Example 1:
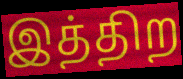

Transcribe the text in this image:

இத்திற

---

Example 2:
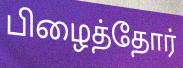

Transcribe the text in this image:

பிழைத்தோர்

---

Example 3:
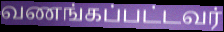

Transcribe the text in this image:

வணங்கப்பட்டவர்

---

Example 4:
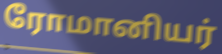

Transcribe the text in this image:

ரோமானியர்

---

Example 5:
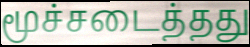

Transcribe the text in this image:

மூச்சடைத்தது